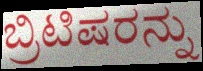
ಬ್ರಿಟಿಷರನ್ನು